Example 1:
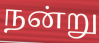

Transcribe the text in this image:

நன்று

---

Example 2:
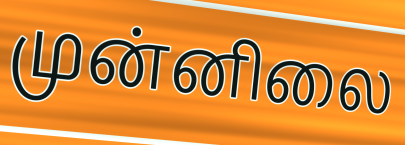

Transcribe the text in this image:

முன்னிலை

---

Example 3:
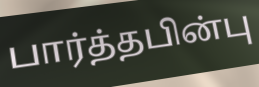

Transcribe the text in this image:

பார்த்தபின்பு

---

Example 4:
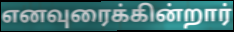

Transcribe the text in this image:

எனவுரைக்கின்றார்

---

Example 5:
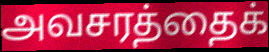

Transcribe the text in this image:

அவசரத்தைக்